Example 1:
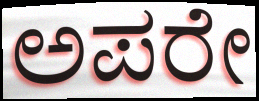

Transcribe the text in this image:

ಅಪರೇ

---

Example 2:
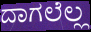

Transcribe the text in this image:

ದಾಗಲೆಲ್ಲ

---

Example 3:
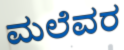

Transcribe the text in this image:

ಮಲೆವರ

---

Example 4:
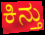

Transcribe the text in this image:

ಕಿನ್ತು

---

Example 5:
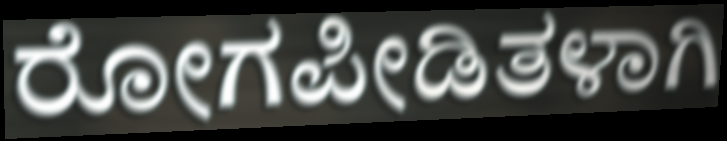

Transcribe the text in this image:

ರೋಗಪೀಡಿತಳಾಗಿ